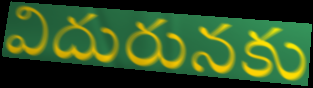
విదురునకు